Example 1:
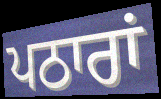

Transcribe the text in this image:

ਪਠਾਰਾਂ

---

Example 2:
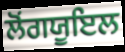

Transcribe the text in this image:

ਲੋਂਗਯੂਇਲ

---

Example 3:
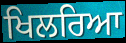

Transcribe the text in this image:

ਖਿਲਰਿਆ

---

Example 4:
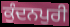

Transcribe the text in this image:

ਕੁੰਦਨਪੁਰੀ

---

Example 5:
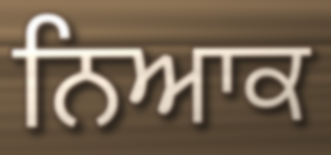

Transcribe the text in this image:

ਨਿਆਕ